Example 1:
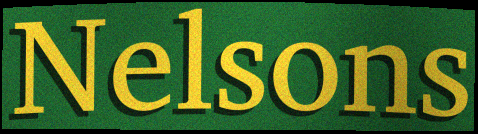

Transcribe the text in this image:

Nelsons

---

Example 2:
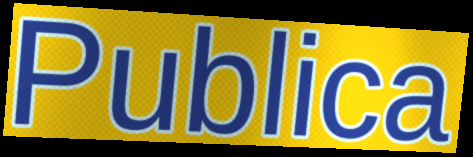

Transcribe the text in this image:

Publica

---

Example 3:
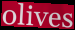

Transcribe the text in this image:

olives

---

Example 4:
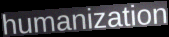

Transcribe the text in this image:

humanization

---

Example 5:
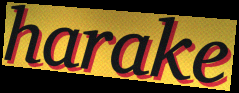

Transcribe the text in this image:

harake